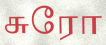
சுரோ